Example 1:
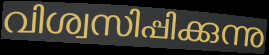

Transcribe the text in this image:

വിശ്വസിപ്പിക്കുന്നു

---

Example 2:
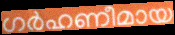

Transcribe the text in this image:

ഗർഹണീമായ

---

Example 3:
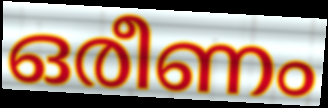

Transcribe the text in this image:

ഒരീണം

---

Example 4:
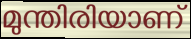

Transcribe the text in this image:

മുന്തിരിയാണ്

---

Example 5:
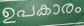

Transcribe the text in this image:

ഉപകാരം